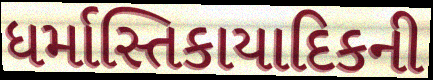
ધર્માસ્તિકાયાદિકની